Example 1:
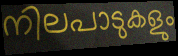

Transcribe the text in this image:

നിലപാടുകളും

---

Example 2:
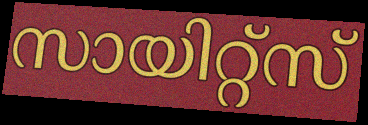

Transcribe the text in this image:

സായിറ്റ്സ്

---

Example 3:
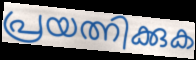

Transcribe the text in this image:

പ്രയത്നിക്കുക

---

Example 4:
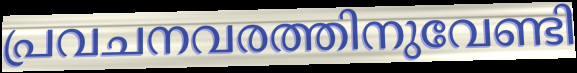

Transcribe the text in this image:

പ്രവചനവരത്തിനുവേണ്ടി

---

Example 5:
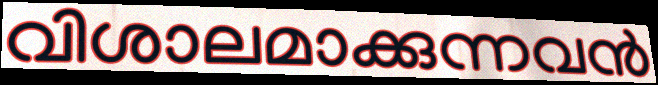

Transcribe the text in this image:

വിശാലമാക്കുന്നവൻ